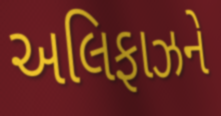
અલિફાઝને